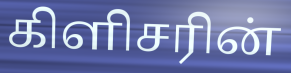
கிளிசரின்